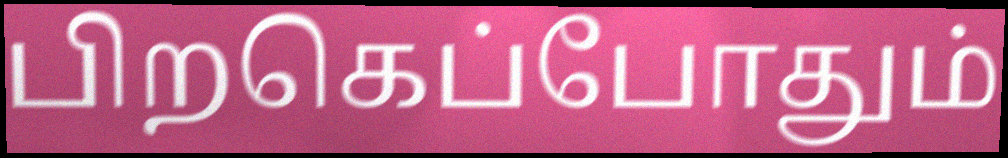
பிறகெப்போதும்